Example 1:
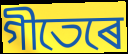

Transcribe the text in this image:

গীতেৰে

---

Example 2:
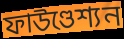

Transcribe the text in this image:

ফাউণ্ডেশ্যন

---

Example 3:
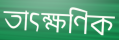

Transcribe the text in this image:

তাৎক্ষণিক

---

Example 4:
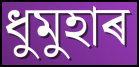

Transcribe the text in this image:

ধুমুহাৰ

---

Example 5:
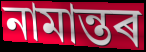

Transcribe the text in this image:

নামান্তৰ